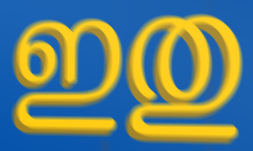
ഇതു